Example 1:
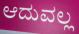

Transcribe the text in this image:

ಆದುವಲ್ಲ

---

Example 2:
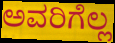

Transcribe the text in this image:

ಅವರಿಗೆಲ್ಲ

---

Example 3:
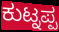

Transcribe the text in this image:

ಕುಟ್ನಪ್ಪ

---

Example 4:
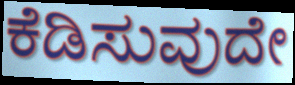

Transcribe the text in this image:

ಕೆಡಿಸುವುದೇ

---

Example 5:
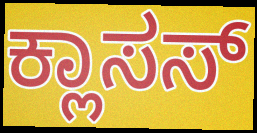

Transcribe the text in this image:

ಕ್ಲಾಸಸ್